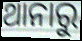
ଥାନାରୁ